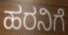
ಹರನಿಗೆ